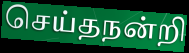
செய்தநன்றி